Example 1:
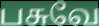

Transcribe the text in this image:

பசுவே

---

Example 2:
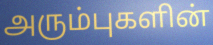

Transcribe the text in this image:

அரும்புகளின்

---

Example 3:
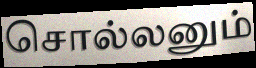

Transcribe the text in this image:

சொல்லனும்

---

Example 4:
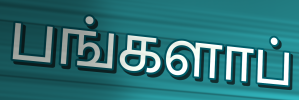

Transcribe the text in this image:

பங்களாப்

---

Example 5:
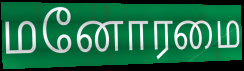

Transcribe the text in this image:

மனோரமை